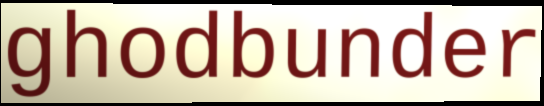
ghodbunder